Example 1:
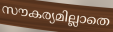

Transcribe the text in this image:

സൗകര്യമില്ലാതെ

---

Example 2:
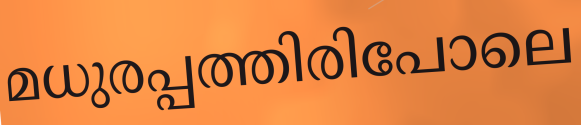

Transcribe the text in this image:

മധുരപ്പത്തിരിപോലെ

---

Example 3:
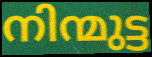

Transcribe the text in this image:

നിന്മുട്ട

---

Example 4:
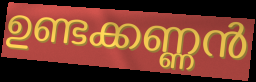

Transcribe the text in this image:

ഉണ്ടക്കണ്ണൻ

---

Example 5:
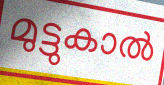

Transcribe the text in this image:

മുട്ടുകാൽ